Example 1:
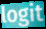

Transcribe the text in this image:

logit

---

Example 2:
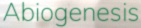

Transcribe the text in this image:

Abiogenesis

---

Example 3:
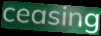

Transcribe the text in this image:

ceasing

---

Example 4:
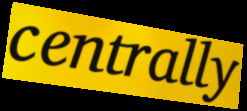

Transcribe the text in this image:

centrally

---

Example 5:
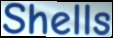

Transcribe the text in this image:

Shells